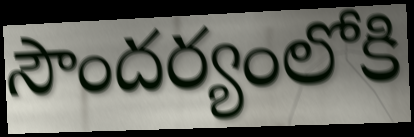
సౌందర్యంలోకి